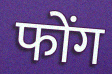
फोंग